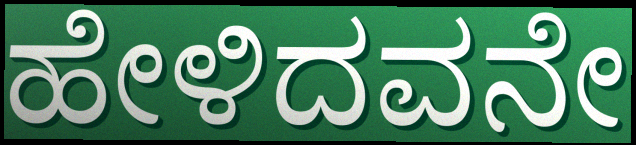
ಹೇಳಿದವನೇ